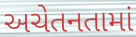
અચેતનતામાં